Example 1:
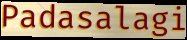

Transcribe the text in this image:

Padasalagi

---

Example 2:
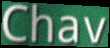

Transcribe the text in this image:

Chav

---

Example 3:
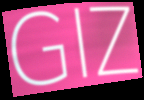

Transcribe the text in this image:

GIZ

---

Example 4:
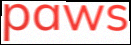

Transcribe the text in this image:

paws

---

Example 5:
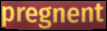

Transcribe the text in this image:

pregnent